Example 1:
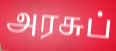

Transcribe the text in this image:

அரசுப்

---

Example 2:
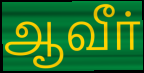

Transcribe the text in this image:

ஆவீர்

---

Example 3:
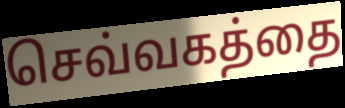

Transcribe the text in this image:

செவ்வகத்தை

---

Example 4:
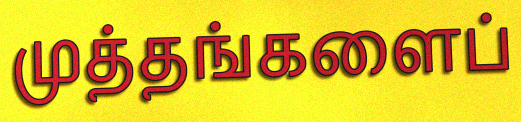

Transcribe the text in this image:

முத்தங்களைப்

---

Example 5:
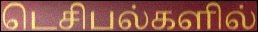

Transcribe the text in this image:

டெசிபல்களில்